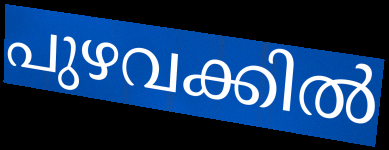
പുഴവക്കിൽ